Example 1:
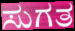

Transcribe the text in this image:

ಸುಗತ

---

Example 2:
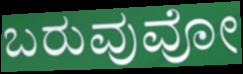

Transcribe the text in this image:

ಬರುವುವೋ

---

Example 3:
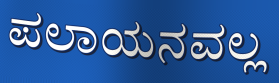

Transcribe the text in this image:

ಪಲಾಯನವಲ್ಲ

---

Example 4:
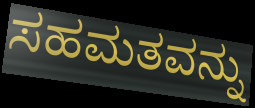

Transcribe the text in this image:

ಸಹಮತವನ್ನು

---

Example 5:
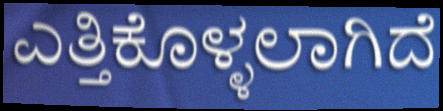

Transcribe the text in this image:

ಎತ್ತಿಕೊಳ್ಳಲಾಗಿದೆ